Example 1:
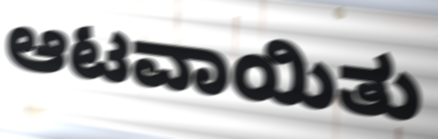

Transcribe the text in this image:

ಆಟವಾಯಿತು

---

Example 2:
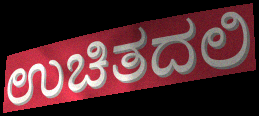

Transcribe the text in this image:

ಉಚಿತದಲಿ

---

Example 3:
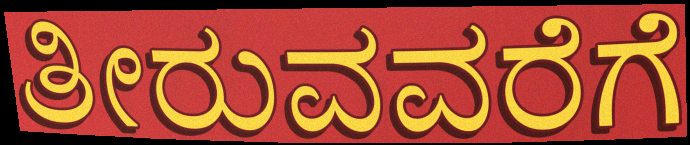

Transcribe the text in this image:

ತೀರುವವರೆಗೆ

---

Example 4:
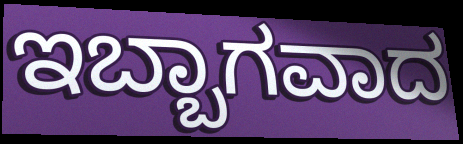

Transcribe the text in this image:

ಇಬ್ಬಾಗವಾದ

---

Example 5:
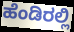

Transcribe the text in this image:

ಹೆಂಡಿರಲ್ಲಿ